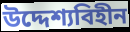
উদ্দেশ্যবিহীন